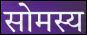
सोमस्य